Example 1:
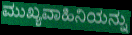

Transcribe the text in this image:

ಮುಖ್ಯವಾಹಿನಿಯನ್ನು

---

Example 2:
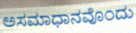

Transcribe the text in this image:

ಅಸಮಾಧಾನವೊಂದು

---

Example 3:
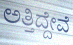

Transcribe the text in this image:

ಅತ್ತಿದ್ದೇವೆ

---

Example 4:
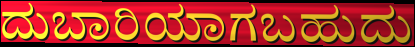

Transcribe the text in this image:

ದುಬಾರಿಯಾಗಬಹುದು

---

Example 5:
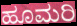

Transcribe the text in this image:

ಹೂಮರಿ